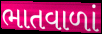
ભાતવાળાં